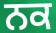
ਨਕ